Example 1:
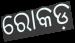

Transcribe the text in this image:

ରୋକଡ଼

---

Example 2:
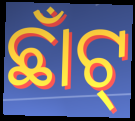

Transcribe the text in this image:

ଛାଁଟ୍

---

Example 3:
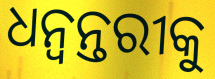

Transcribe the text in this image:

ଧନ୍ବନ୍ତରୀକୁ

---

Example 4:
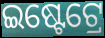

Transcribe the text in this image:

ଇଷ୍ଟେଟ୍ରେ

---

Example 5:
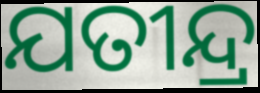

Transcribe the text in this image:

ଯତୀନ୍ଦ୍ର